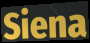
Siena